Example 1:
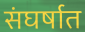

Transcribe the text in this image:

संघर्षात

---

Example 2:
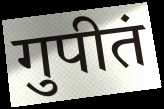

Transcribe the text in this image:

गुपीतं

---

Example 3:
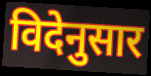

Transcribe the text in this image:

विदेनुसार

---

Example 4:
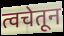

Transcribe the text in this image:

त्वचेतून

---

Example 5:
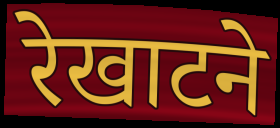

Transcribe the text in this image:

रेखाटने